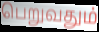
பெறுவதும்